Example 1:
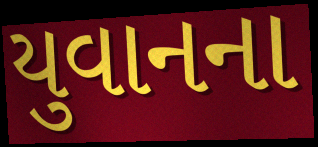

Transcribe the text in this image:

યુવાનના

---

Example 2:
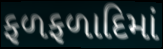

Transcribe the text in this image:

ફળફળાદિમાં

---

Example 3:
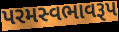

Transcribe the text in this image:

પરમસ્વભાવરૂપ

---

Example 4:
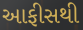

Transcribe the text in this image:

આફીસથી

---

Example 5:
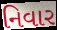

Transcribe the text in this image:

નિવાર